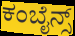
ಕಂಬೈನ್ಸ್